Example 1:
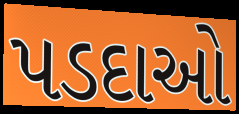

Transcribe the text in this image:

પડદાઓ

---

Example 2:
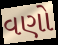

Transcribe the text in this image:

વણો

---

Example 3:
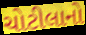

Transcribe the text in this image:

ચોટીલાનો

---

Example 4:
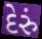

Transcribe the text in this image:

દેરું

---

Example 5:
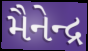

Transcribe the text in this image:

મૈનેન્દ્ર